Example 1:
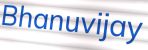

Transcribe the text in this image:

Bhanuvijay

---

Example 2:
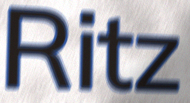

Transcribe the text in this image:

Ritz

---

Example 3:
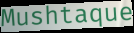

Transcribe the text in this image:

Mushtaque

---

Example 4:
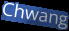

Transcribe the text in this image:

Chwang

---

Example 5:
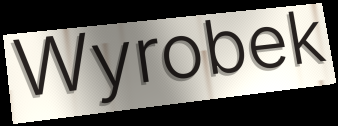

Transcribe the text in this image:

Wyrobek